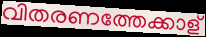
വിതരണത്തേക്കാള്